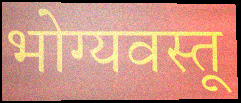
भोग्यवस्तू